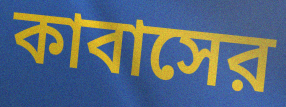
কাবাসের